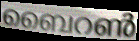
ബൈറൺ